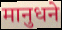
मानुधने